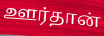
ஊர்தான்